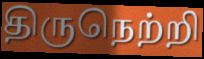
திருநெற்றி